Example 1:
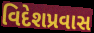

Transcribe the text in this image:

વિદેશપ્રવાસ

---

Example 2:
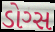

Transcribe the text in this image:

ડોગ્સ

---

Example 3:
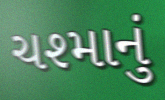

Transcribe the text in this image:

ચશ્માનું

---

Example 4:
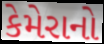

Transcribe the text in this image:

કેમેરાનો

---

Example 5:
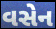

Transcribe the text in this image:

વસેન